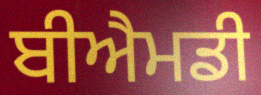
ਬੀਐਮਡੀ